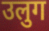
उलुग